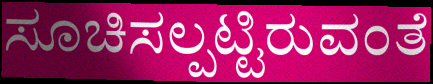
ಸೂಚಿಸಲ್ಪಟ್ಟಿರುವಂತೆ